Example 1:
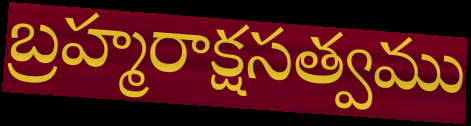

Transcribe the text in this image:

బ్రహ్మరాక్షసత్వము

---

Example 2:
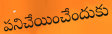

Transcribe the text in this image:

పనిచేయించేందుకు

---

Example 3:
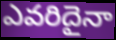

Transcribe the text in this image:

ఎవరిదైనా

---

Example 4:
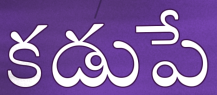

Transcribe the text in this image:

కడుపే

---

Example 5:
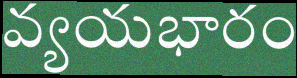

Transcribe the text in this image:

వ్యయభారం